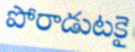
పోరాడుటకై